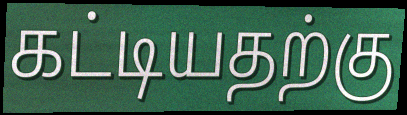
கட்டியதற்கு